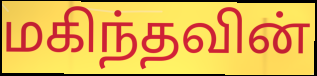
மகிந்தவின்